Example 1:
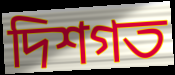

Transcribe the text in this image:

দিশগত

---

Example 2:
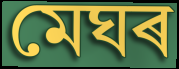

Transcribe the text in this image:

মেঘৰ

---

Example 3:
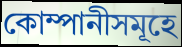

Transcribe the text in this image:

কোম্পানীসমূহে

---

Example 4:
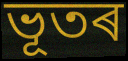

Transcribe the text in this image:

ভূতৰ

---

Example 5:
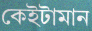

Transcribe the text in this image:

কেইটামান